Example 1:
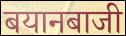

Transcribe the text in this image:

बयानबाजी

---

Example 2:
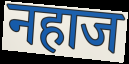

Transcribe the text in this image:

नहाज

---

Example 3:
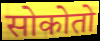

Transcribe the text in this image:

सोकोतो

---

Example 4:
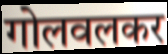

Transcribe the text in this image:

गोलवलकर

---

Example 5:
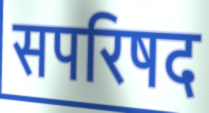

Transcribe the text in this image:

सपरिषद